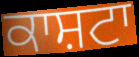
ਕਾਸ਼ਟਾ